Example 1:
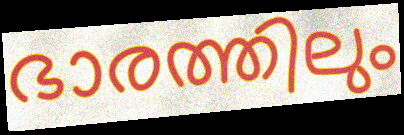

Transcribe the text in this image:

ഭാരത്തിലും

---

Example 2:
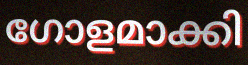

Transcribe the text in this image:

ഗോളമാക്കി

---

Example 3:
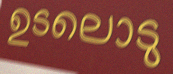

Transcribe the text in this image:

ഉടലൊടു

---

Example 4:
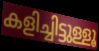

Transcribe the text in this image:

കളിച്ചിട്ടുള്ളൂ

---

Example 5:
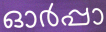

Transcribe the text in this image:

ഓർപ്പാ